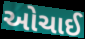
ઓચાઈ